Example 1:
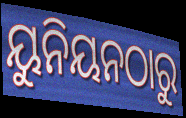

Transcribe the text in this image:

ୟୁନିୟନଠାରୁ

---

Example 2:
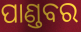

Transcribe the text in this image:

ପାଣ୍ଡବର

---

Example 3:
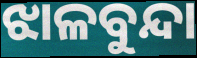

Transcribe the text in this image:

ଝାଳବୁନ୍ଦା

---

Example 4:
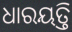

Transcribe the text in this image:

ଧାରୟତ୍ତି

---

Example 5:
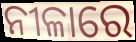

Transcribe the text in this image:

ନୀଳାରେ